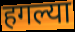
हगल्या